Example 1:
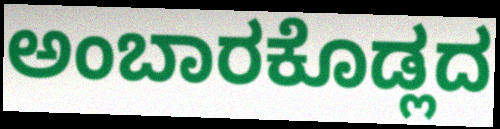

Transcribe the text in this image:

ಅಂಬಾರಕೊಡ್ಲದ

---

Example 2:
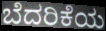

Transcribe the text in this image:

ಬೆದರಿಕೆಯ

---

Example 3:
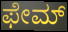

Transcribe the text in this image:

ಫೇಮ್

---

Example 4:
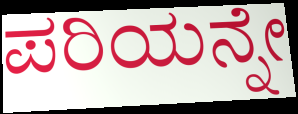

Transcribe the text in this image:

ಪರಿಯನ್ನೇ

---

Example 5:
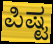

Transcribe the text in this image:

ಪಿಷ್ಟ